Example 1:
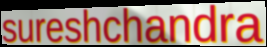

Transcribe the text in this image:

sureshchandra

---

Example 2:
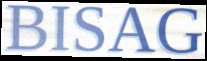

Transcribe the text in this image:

BISAG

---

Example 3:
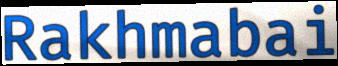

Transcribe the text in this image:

Rakhmabai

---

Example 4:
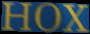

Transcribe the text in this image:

HOX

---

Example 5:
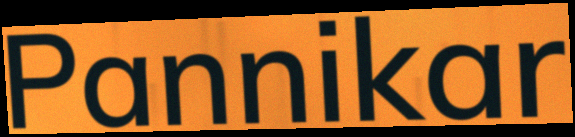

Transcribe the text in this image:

Pannikar